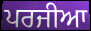
ਪਰਜੀਆ